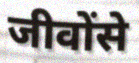
जीवोंसे